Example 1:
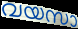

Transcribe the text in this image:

വയസാ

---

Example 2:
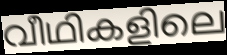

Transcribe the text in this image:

വീഥികളിലെ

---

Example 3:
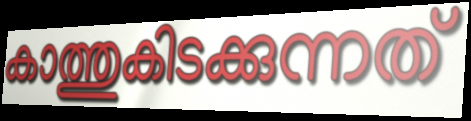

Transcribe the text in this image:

കാത്തുകിടക്കുന്നത്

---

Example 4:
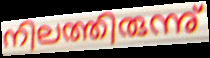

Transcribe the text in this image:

നിലത്തിരുന്നു്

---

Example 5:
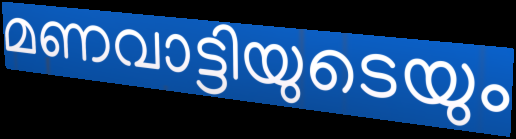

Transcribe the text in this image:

മണവാട്ടിയുടെയും